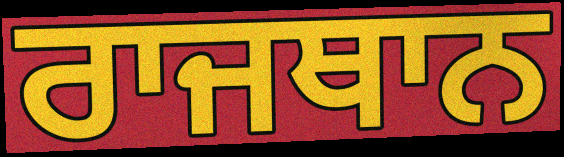
ਰਾਜਥਾਨ